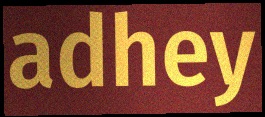
adhey